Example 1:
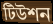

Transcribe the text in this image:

টিউশন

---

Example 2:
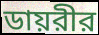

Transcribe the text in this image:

ডায়রীর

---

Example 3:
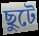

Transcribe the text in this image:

ছুটে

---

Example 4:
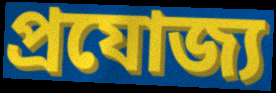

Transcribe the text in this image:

প্রযোজ্য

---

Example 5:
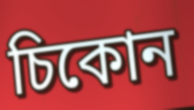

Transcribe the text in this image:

চিকোন